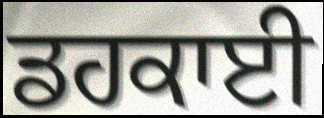
ਡਹਕਾਈ